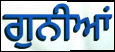
ਗੁਨੀਆਂ